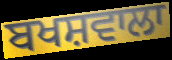
ਬਖਸ਼ਵਾਲਾ